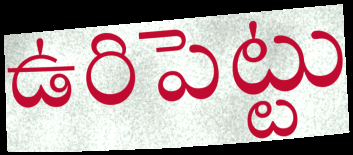
ఉరిపెట్టు